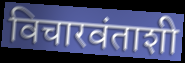
विचारवंताशी